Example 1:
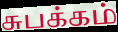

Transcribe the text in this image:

சுபக்கம்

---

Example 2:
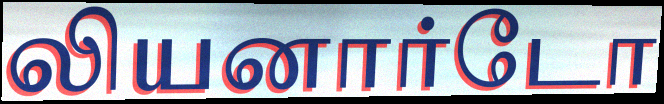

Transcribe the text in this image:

லியனார்டோ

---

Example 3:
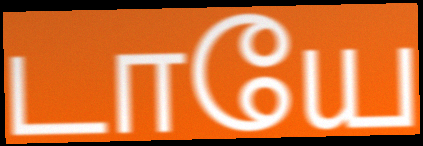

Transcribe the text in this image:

டாயே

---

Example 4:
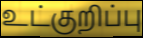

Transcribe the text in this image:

உட்குறிப்பு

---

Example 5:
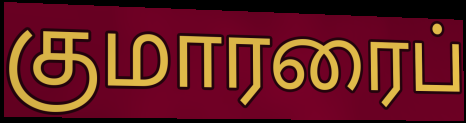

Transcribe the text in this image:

குமாரரைப்